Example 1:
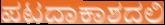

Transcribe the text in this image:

ಪಟದಾಕಾಶದಲಿ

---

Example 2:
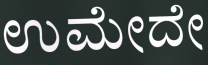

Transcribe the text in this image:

ಉಮೇದೇ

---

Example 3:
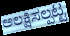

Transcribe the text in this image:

ಅಲಕ್ಷಿಸಲ್ಪಟ್ಟ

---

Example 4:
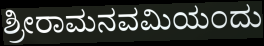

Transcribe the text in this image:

ಶ್ರೀರಾಮನವಮಿಯಂದು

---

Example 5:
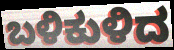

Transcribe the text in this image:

ಬಳಿಕುಳಿದ